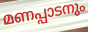
മണപ്പാടനും